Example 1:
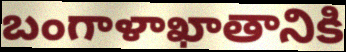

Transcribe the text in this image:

బంగాళాఖాతానికి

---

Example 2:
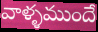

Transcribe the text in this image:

వాళ్ళముందే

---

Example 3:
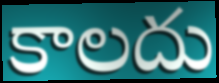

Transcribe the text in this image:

కాలదు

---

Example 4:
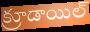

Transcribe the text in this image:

క్రూడాయిల్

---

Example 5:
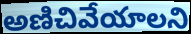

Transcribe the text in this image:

అణిచివేయాలని